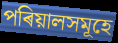
পৰিয়ালসমূহে